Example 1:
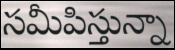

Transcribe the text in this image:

సమీపిస్తున్నా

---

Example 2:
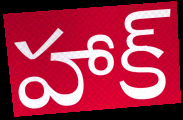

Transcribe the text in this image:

హాక్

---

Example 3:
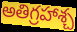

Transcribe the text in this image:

అతిగ్రహాశ్చ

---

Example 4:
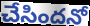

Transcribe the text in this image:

చేసిందనో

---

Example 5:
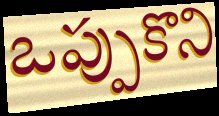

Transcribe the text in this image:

ఒప్పుకొని